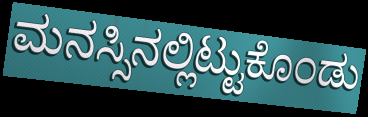
ಮನಸ್ಸಿನಲ್ಲಿಟ್ಟುಕೊಂಡು